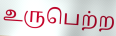
உருபெற்ற